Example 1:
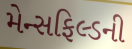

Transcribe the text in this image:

મેન્સફિલ્ડની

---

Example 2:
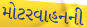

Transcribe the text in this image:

મોટરવાહનની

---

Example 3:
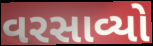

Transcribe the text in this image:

વરસાવ્યો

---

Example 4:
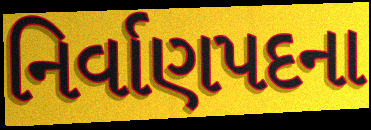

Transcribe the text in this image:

નિર્વાણપદના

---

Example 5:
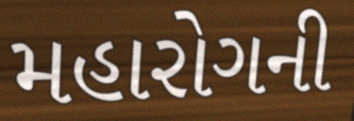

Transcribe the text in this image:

મહારોગની